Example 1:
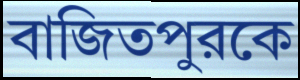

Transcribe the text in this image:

বাজিতপুরকে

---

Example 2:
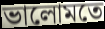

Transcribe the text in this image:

ভালোমতে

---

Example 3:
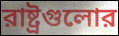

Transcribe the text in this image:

রাষ্ট্রগুলোর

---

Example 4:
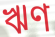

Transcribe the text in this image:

ঋণ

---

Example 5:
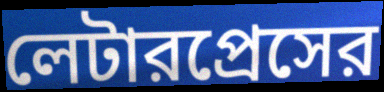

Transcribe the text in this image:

লেটারপ্রেসের